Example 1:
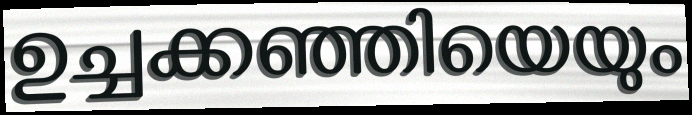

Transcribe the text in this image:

ഉച്ചക്കഞ്ഞിയെയും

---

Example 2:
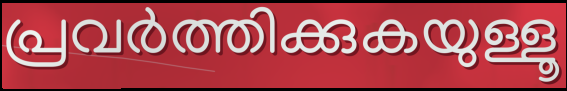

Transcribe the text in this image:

പ്രവർത്തിക്കുകയുള്ളൂ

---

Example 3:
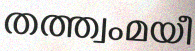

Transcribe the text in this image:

തത്ത്വംമയീ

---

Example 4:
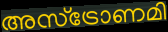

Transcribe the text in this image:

അസ്ട്രോണമി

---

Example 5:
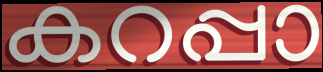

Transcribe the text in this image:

കറപ്പാ